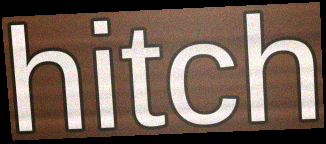
hitch